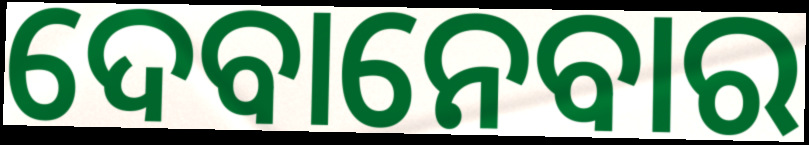
ଦେବାନେବାର